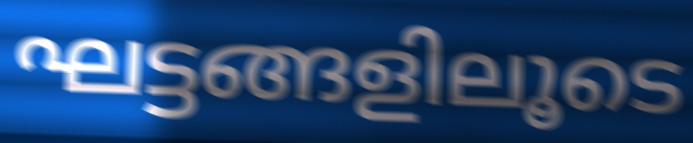
ഘട്ടങ്ങളിലൂടെ